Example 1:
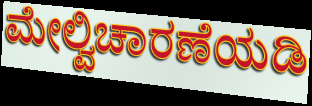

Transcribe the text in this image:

ಮೇಲ್ವಿಚಾರಣೆಯಡಿ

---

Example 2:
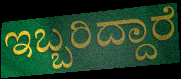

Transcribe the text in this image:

ಇಬ್ಬರಿದ್ದಾರೆ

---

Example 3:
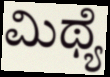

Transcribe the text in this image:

ಮಿಥ್ಯೆ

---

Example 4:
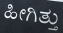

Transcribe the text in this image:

ಹೀಗಿತ್ತು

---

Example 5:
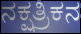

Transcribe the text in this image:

ನಕ್ಷತ್ರಿಕನ